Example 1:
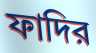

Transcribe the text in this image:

ফাদির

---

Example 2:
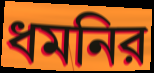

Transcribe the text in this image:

ধমনির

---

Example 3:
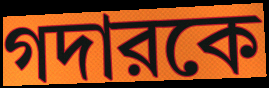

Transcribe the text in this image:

গদারকে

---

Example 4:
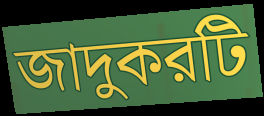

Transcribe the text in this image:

জাদুকরটি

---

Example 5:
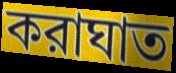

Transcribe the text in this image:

করাঘাত